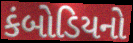
કંબોડિયનો